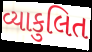
વ્યાકુલિત